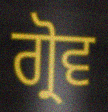
ਗ੍ਰੋਵ